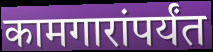
कामगारांपर्यंत